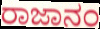
ರಾಜಾನಂ